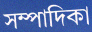
সম্পাদিকা